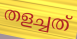
തളച്ചത്